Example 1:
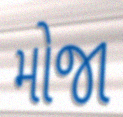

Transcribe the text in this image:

મોજા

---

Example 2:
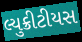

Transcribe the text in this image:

લ્યુક્રીટીયસ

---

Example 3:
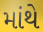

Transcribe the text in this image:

માંથે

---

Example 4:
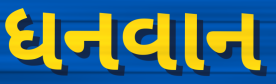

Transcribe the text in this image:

ધનવાન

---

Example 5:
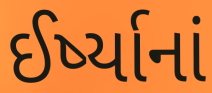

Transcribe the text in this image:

ઈર્ષ્યાનાં